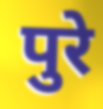
पुरे